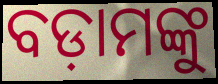
ବଡ଼ାମଙ୍କୁ